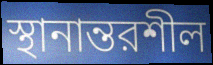
স্থানান্তরশীল